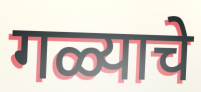
गळ्याचे